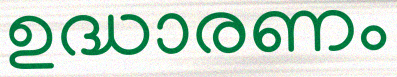
ഉദ്ധാരണം